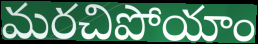
మరచిపోయాం